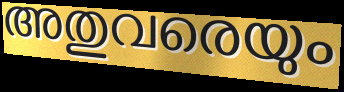
അതുവരെയും